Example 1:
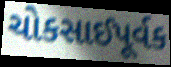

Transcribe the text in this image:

ચોકસાઈપૂર્વક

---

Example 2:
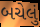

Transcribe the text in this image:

બચેલું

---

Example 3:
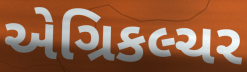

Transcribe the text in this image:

એગ્રિકલ્ચર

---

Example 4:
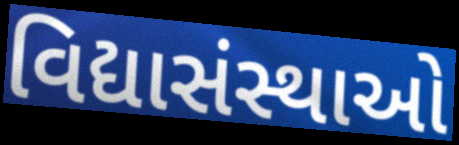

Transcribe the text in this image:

વિદ્યાસંસ્થાઓ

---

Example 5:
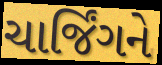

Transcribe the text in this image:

ચાર્જિંગને